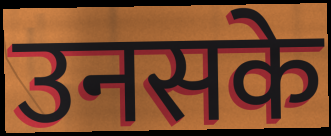
उनसके